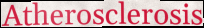
Atherosclerosis